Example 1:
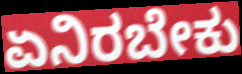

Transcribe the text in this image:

ಏನಿರಬೇಕು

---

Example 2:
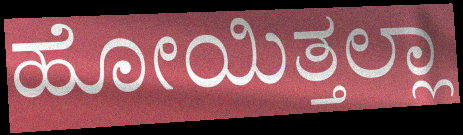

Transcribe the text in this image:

ಹೋಯಿತ್ತಲ್ಲಾ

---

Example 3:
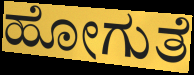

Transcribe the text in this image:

ಹೋಗುತೆ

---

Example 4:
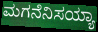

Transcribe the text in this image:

ಮಗನೆನಿಸಯ್ಯಾ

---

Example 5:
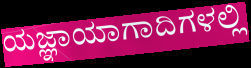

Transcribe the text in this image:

ಯಜ್ಞಾಯಾಗಾದಿಗಳಲ್ಲಿ